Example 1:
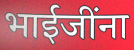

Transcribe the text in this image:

भाईजींना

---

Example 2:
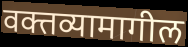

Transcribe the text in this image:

वक्तव्यामागील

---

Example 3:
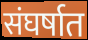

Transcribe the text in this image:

संघर्षात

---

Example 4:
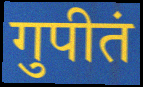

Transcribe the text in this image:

गुपीतं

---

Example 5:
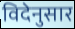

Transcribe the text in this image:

विदेनुसार